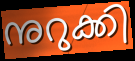
നുറുക്കി